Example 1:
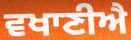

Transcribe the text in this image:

ਵਖਾਣੀਐ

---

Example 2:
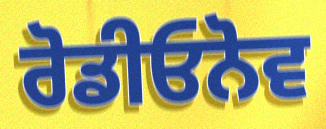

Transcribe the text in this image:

ਰੋਡੀਓਨੋਵ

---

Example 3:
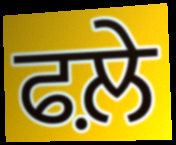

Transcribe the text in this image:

ਫਲ਼ੇ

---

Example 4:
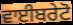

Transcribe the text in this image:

ਵਾਈਬਰੇਟੋ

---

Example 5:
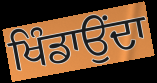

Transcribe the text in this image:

ਖਿੰਡਾਉਂਦਾ